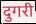
दुगरी